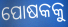
ପୋଷକକୁ